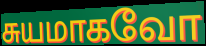
சுயமாகவோ